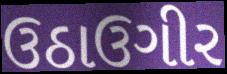
ઉઠાઉગીર